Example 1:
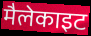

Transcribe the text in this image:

मैलेकाइट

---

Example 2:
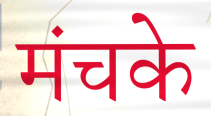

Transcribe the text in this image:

मंचके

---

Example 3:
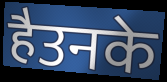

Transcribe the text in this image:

हैउनके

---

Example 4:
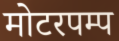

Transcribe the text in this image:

मोटरपम्प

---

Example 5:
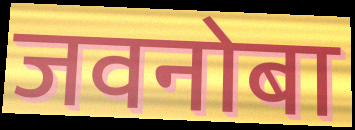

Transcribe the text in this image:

जवनोबा